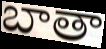
బాతా